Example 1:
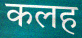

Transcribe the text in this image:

कलह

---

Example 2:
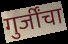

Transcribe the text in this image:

गुर्जींचा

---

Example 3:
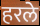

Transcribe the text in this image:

हरले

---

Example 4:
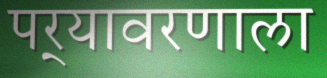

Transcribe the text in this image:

पर्यावरणाला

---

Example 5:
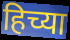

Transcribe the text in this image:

हिच्या